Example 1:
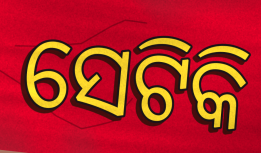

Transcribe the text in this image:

ସେଟିକି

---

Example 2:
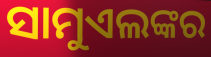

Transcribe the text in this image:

ସାମୁଏଲଙ୍କର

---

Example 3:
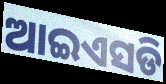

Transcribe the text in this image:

ଆଇଏସଡି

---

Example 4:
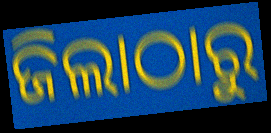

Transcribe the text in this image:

ଜିଲାଠାରୁ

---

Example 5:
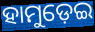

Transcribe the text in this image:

ହାମୁଡ଼େଇ